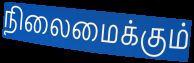
நிலைமைக்கும்